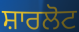
ਸ਼ਾਰਲੋਟ